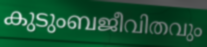
കുടുംബജീവിതവും